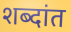
शब्दांत